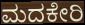
ಮದಕೇರಿ